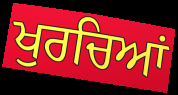
ਖੁਰਚਿਆਂ